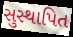
સુસ્થાપિત